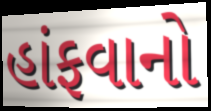
હાંફવાનો